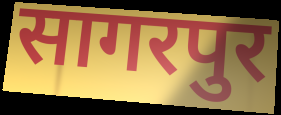
सागरपुर